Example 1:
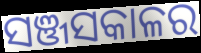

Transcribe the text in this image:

ସଞ୍ଜସକାଳର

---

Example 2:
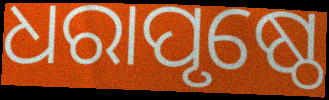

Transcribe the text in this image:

ଧରାପୃଷ୍ଠେ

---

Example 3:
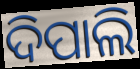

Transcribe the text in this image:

ଦିପାଲି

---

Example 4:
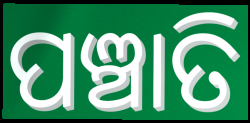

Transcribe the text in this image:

ପଞ୍ଚାତି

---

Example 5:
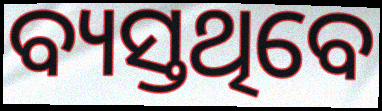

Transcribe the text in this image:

ବ୍ୟସ୍ତଥିବେ